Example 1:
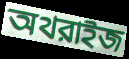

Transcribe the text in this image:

অথরাইজ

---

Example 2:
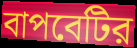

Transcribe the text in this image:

বাপবেটির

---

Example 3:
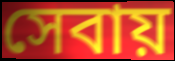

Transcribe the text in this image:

সেবায়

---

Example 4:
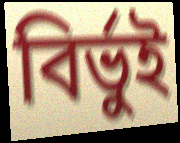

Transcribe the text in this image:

বির্ভুই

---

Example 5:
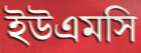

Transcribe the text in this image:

ইউএমসি